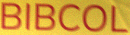
BIBCOL